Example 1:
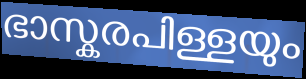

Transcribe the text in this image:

ഭാസ്കരപിള്ളയും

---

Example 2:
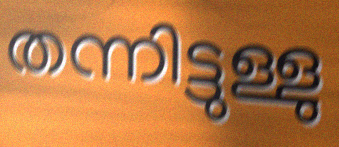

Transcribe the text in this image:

തന്നിട്ടുള്ളു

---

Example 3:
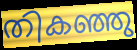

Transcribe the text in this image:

തികഞ്ഞു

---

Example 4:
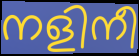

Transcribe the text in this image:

നളിനീ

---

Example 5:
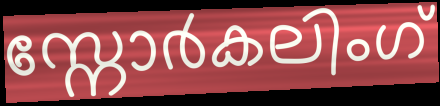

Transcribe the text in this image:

സ്നോർകലിംഗ്